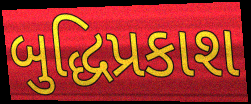
બુદ્ધિપ્રકાશ